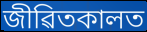
জীৱিতকালত